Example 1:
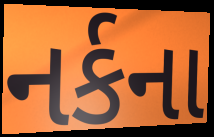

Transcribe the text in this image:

નર્કના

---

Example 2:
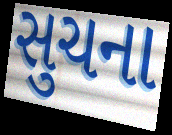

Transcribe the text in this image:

સુચના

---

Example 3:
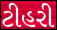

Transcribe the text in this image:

ટીહરી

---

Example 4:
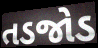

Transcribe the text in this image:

તડજોડ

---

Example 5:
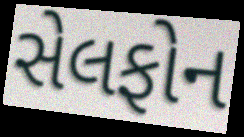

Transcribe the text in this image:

સેલફોન